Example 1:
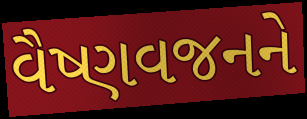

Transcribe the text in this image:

વૈષ્ણવજનને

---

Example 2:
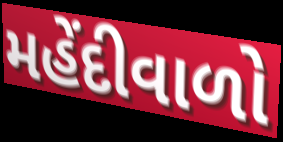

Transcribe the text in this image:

મહેંદીવાળો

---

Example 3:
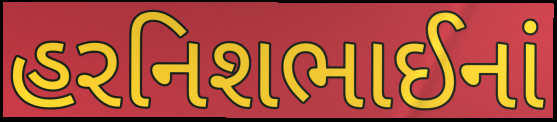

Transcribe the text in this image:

હરનિશભાઈનાં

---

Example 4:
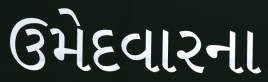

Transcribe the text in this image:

ઉમેદવારના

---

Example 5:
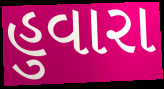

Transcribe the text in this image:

હુવારા